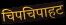
चिपचिपाहट